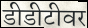
डीडीटीवर